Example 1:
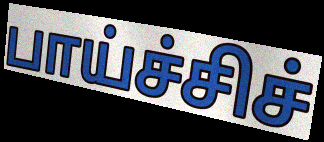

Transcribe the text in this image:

பாய்ச்சிச்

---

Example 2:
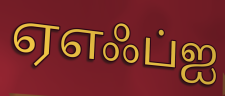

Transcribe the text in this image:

ஏஎஃப்ஐ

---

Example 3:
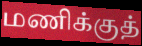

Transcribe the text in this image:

மணிக்குத்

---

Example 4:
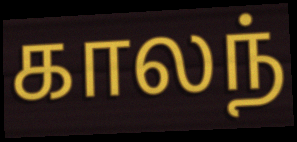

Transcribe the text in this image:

காலந்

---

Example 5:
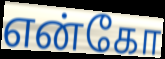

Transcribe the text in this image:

என்கோ